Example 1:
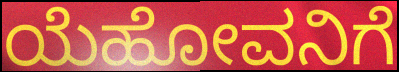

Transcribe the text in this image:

ಯೆಹೋವನಿಗೆ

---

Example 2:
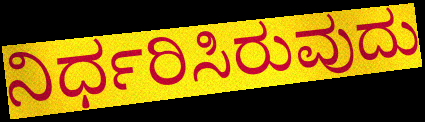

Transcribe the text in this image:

ನಿರ್ಧರಿಸಿರುವುದು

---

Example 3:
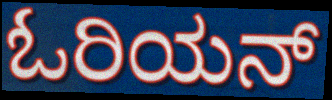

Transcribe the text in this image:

ಓರಿಯನ್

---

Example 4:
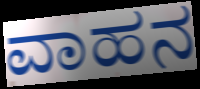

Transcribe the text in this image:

ವಾಹನ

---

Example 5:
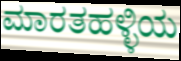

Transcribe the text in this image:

ಮಾರತಹಳ್ಳಿಯ